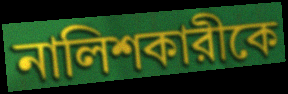
নালিশকারীকে